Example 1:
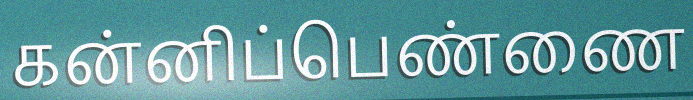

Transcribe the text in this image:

கன்னிப்பெண்ணை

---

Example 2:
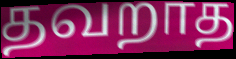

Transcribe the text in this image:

தவறாத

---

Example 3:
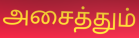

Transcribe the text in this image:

அசைத்தும்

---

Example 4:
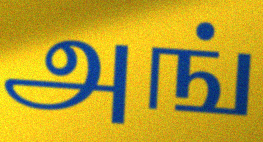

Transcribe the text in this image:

அங்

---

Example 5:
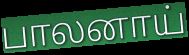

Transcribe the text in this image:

பாலனாய்